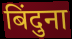
बिंदुना